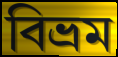
বিভ্রম